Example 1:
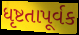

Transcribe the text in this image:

ધૃષ્ટતાપૂર્વક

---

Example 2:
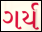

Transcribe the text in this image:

ગર્ય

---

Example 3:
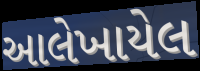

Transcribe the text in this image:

આલેખાયેલ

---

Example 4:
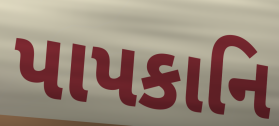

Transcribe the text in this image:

પાપકાનિ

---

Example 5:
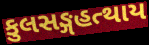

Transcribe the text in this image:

કુલસઙ્ગહત્થાય